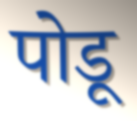
पोडू